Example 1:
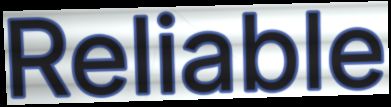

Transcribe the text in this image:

Reliable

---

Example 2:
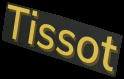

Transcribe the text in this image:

Tissot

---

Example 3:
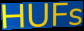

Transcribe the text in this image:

HUFs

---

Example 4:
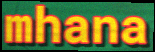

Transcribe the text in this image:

mhana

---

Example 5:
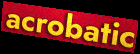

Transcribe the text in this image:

acrobatic